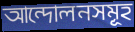
আন্দোলনসমূহ